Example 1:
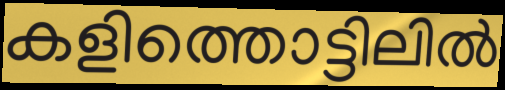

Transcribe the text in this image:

കളിത്തൊട്ടിലിൽ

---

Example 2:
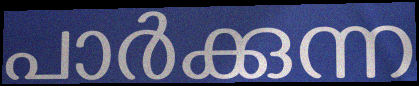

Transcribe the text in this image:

പാർക്കുന്ന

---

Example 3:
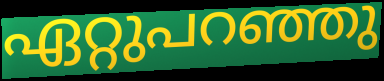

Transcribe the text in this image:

ഏറ്റുപറഞ്ഞു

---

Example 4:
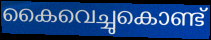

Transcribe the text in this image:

കൈവെച്ചുകൊണ്ട്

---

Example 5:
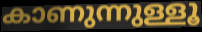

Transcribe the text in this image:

കാണുന്നുള്ളൂ